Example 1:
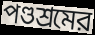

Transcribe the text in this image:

পণ্ডশ্রমের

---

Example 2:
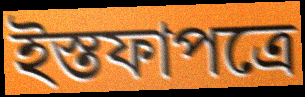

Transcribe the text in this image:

ইস্তফাপত্রে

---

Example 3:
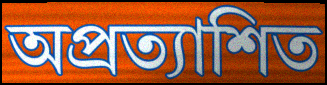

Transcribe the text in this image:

অপ্রত্যাশিত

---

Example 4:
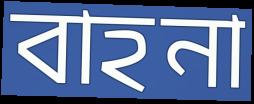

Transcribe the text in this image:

বাহনা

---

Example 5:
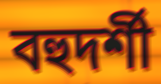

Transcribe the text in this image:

বহুদর্শী